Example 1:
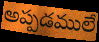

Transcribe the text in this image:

అప్పడములే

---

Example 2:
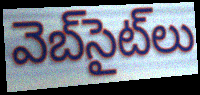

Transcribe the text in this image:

వెబ్‌సైట్‌లు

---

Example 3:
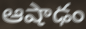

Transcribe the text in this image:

ఆషాఢం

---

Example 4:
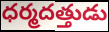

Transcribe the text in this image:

ధర్మదత్తుడు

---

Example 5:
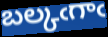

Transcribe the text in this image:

బల్కఁగాఁ